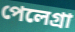
পেলেগ্রা